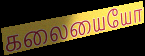
கலையையோ